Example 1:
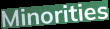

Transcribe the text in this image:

Minorities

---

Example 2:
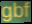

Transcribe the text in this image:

gbf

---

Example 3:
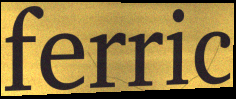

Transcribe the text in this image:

ferric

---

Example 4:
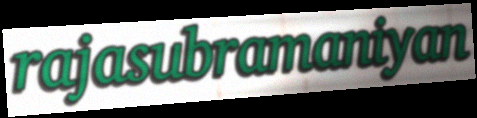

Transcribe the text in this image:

rajasubramaniyan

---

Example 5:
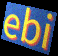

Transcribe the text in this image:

ebi